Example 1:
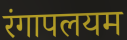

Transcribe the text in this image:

रंगापलयम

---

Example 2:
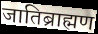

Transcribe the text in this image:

जातिब्राह्मण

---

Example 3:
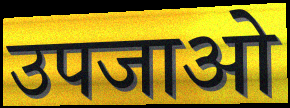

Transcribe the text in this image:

उपजाओ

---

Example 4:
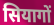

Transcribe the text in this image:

सियागों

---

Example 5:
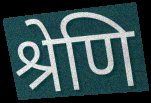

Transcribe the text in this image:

श्रेणि